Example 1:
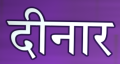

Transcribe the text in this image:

दीनार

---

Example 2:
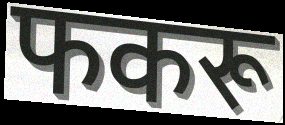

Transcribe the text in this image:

फकरू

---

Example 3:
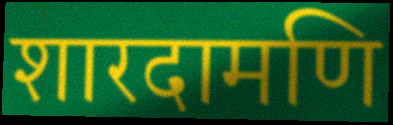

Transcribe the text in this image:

शारदामणि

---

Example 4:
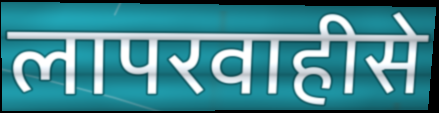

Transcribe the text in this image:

लापरवाहीसे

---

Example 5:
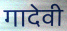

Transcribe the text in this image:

गादेवी